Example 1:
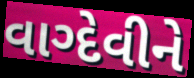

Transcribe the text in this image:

વાગ્દેવીને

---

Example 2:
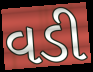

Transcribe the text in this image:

વડી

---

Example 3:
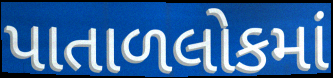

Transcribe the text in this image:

પાતાળલોકમાં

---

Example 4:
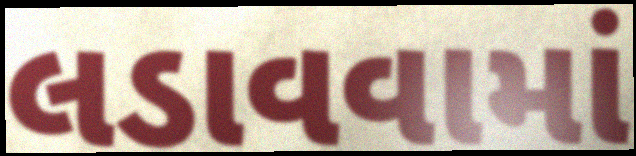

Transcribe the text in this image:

લડાવવામાં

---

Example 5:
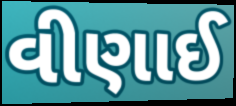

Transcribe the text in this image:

વીણાઈ